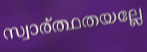
സ്വാര്ത്ഥതയല്ലേ